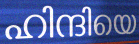
ഹിന്ദിയെ